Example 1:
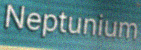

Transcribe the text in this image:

Neptunium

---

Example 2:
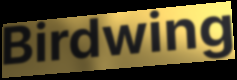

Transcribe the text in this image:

Birdwing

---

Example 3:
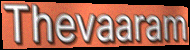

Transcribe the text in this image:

Thevaaram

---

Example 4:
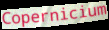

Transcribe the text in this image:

Copernicium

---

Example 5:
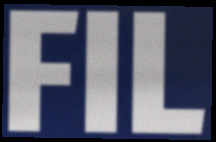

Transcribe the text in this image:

FIL